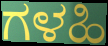
ಗಳಹಿ